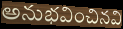
అనుభవించినవి